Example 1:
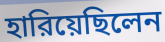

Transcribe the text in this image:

হারিয়েছিলেন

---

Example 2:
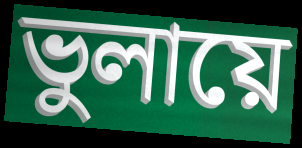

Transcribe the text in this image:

ভুলায়ে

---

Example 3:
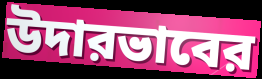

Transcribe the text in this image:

উদারভাবের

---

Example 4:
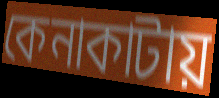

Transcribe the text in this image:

কেনাকাটায়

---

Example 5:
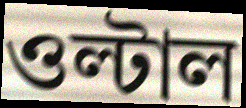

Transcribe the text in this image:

ওল্টাল